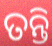
ତନ୍ତି